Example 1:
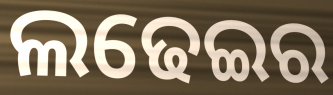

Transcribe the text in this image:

ଲଢେଇର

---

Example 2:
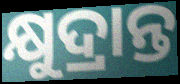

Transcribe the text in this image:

କ୍ଷୁଦ୍ରାନ୍ତ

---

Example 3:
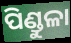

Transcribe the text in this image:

ପିଣ୍ଡୁଳା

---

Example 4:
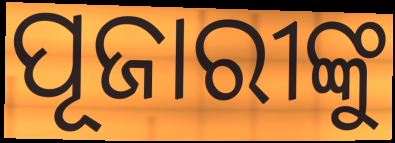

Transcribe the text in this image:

ପୂଜାରୀଙ୍କୁ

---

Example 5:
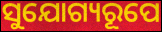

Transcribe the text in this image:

ସୁଯୋଗ୍ୟରୂପେ